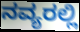
ನವ್ಯರಲ್ಲಿ